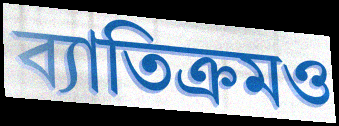
ব্যাতিক্রমও